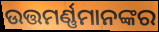
ଉତ୍ତମର୍ଣ୍ଣମାନଙ୍କର